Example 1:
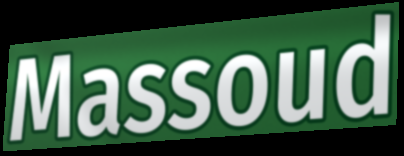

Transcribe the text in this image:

Massoud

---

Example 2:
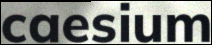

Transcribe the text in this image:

caesium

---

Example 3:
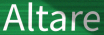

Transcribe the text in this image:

Altare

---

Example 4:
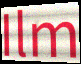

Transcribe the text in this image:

Ilm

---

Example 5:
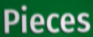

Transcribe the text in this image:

Pieces